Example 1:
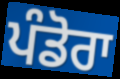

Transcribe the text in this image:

ਪੰਡੋਰਾ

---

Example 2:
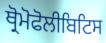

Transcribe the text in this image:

ਥ੍ਰੋਮੋਫੋਲੀਬਿਟਿਸ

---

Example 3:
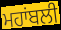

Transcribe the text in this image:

ਮਹਾਂਬਲੀ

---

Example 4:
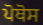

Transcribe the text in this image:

ਪੋਥੋਸ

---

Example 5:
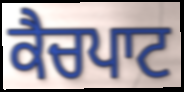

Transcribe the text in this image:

ਕੈਚਪਾਟ